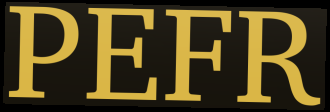
PEFR